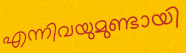
എന്നിവയുമുണ്ടായി